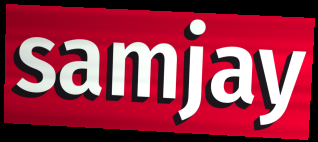
samjay